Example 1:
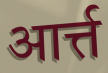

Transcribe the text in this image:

आर्त्त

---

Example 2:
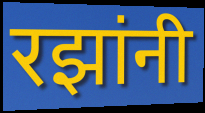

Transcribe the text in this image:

रझांनी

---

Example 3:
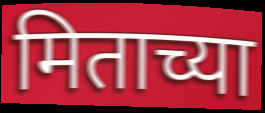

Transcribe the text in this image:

मिताच्या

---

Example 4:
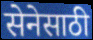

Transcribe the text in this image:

सेनेसाठी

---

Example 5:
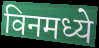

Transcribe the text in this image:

विनमध्ये